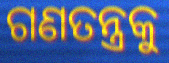
ଗଣତନ୍ତ୍ରକୁ